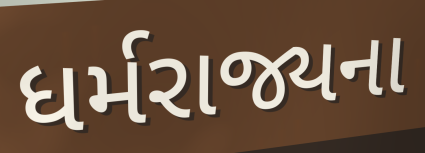
ધર્મરાજ્યના